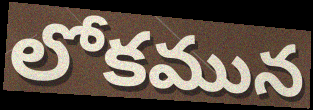
లోకమున